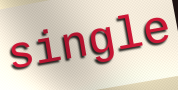
single